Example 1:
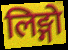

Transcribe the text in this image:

लिङ्गो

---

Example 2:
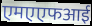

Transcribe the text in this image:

एमएएफआई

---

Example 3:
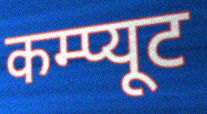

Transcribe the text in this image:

कम्प्यूट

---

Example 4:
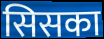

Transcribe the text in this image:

सिसका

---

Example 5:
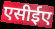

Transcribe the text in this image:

एसीईए